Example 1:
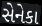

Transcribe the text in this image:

સેનેકા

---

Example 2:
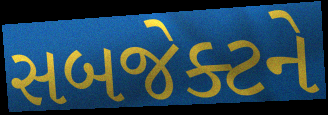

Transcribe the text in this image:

સબજેક્ટને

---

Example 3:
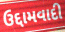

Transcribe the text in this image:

ઉદ્દામવાદી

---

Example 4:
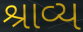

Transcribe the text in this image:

શ્રાવ્ય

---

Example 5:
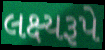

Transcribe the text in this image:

લક્ષ્યરૂપે